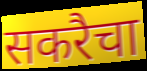
सकरैचा